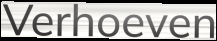
Verhoeven